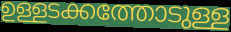
ഉള്ളടക്കത്തോടുള്ള